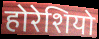
होरेशियो